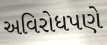
અવિરોધપણે